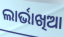
ଲାର୍ଭାଖିଆ